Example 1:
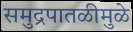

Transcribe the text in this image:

समुद्रपातळीमुळे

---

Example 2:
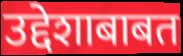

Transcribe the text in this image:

उद्देशाबाबत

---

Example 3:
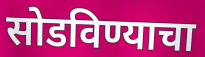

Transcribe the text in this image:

सोडविण्याचा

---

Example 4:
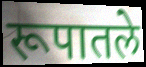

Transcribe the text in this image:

रूपातले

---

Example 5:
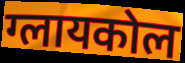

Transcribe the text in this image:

ग्लायकोल